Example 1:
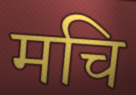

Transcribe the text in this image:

मचि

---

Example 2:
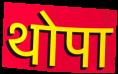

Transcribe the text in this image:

थोपा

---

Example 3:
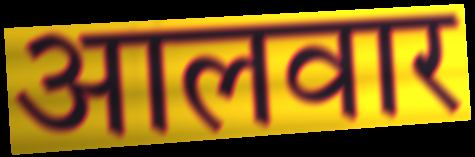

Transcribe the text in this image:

आलवार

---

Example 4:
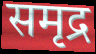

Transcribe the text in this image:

समृद्र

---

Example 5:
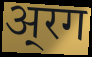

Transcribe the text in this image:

अ्रग